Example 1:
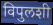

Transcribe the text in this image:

विपुलशी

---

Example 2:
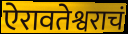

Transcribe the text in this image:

ऐरावतेश्वराचं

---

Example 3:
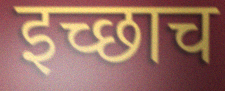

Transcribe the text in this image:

इच्छाच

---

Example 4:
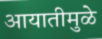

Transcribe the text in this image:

आयातीमुळे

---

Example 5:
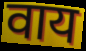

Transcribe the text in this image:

वाय